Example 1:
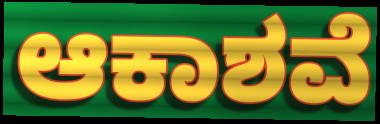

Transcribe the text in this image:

ಆಕಾಶವೆ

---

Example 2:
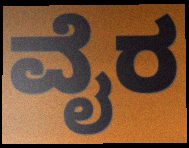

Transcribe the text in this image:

ವೈರ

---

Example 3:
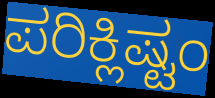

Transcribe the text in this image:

ಪರಿಕ್ಲಿಷ್ಟಂ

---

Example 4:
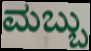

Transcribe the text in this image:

ಮಬ್ಬು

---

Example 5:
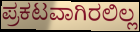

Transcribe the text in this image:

ಪ್ರಕಟವಾಗಿರಲಿಲ್ಲ